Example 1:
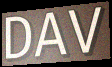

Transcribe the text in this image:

DAV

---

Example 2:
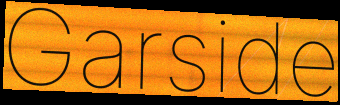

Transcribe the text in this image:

Garside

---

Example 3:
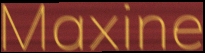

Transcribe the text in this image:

Maxine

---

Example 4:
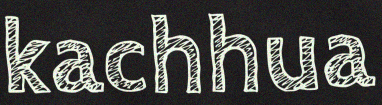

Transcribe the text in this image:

kachhua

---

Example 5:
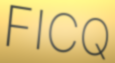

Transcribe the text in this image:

FICQ